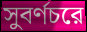
সুবর্ণচরে